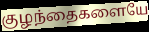
குழந்தைகளையே